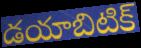
డయాబిటిక్